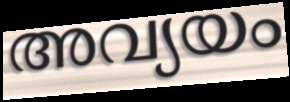
അവ്യയം